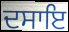
ਦਸਾਇ